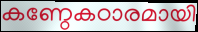
കണ്ഠേകഠാരമായി